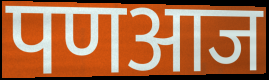
पणआज